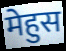
मेहुस